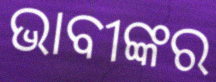
ଭାବୀଙ୍କର